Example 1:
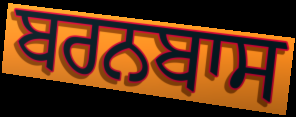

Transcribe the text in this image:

ਬਰਨਬਾਸ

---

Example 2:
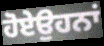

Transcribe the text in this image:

ਹੋਏਉਹਨਾਂ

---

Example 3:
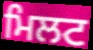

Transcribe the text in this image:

ਮਿਲਟ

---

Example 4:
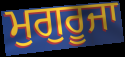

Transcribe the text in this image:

ਮੁਗੁਰੂਜਾ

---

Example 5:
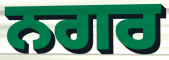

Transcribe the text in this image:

ਨਗਰ